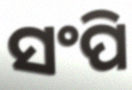
ସଂପି